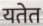
यतेत